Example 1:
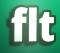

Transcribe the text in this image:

flt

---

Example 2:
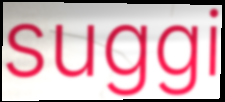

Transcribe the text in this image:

suggi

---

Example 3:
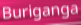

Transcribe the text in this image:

Buriganga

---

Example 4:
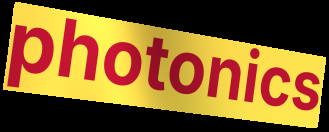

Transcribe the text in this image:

photonics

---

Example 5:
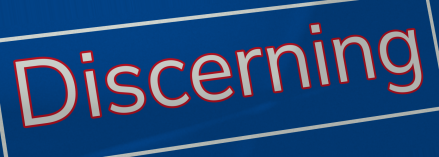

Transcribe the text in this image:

Discerning